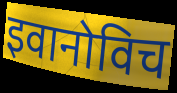
इवानोविच